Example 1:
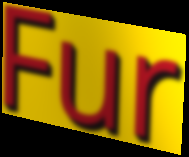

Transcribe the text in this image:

Fur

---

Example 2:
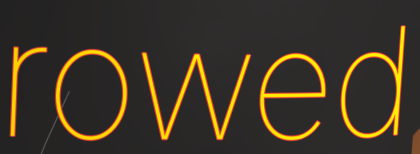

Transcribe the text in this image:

rowed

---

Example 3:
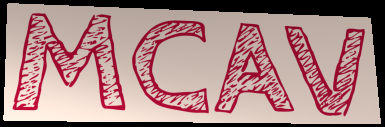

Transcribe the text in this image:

MCAV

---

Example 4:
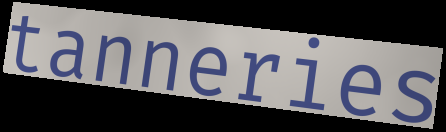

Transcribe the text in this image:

tanneries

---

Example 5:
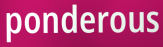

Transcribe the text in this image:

ponderous